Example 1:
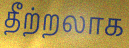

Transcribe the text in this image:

தீற்றலாக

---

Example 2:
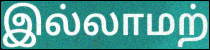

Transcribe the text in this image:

இல்லாமற்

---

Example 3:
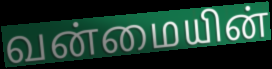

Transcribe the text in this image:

வன்மையின்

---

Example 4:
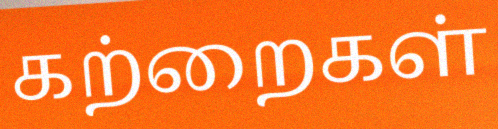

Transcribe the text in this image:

கற்றைகள்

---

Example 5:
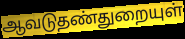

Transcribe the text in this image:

ஆவடுதண்துறையுள்